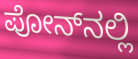
ಪೋನ್‍ನಲ್ಲಿ